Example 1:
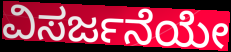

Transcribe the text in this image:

ವಿಸರ್ಜನೆಯೇ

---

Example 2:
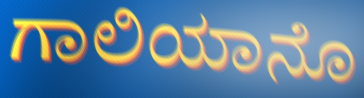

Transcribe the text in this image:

ಗಾಲಿಯಾನೊ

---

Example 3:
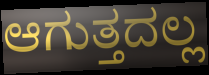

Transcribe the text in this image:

ಆಗುತ್ತದಲ್ಲ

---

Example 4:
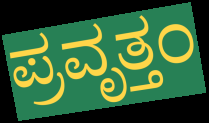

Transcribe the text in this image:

ಪ್ರವೃತ್ತಂ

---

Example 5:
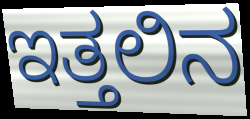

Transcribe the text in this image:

ಇತ್ತಲಿನ